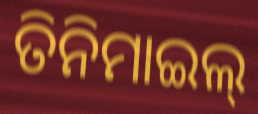
ତିନିମାଇଲ୍